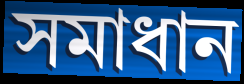
সমাধান